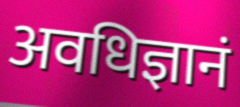
अवधिज्ञानं